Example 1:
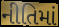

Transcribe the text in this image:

નીતિમાં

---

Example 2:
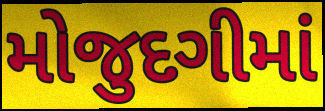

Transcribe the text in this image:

મોજુદગીમાં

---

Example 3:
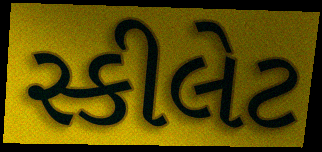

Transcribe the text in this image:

સ્કીલેટ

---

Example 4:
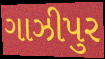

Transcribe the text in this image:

ગાઝીપુર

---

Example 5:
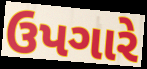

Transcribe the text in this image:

ઉપગારે